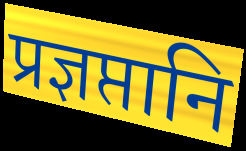
प्रज्ञप्तानि